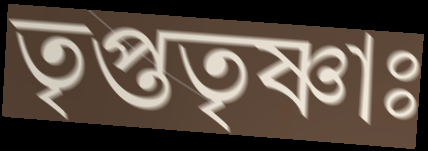
তৃপ্ততৃষ্ণাঃ